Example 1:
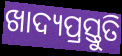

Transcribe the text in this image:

ଖାଦ୍ୟପ୍ରସ୍ତୁତି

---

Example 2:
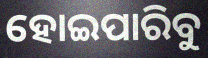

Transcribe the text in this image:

ହୋଇପାରିବୁ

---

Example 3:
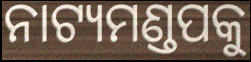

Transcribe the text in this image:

ନାଟ୍ୟମଣ୍ଡପକୁ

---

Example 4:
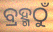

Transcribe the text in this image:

ବ୍ରହ୍ମଠୁଁ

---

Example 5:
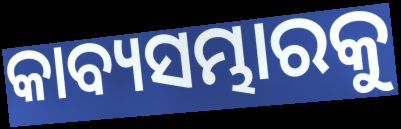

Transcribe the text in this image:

କାବ୍ୟସମ୍ଭାରକୁ